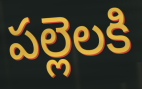
పల్లెలకి